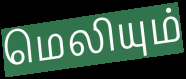
மெலியும்